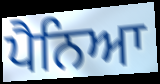
ਪੈਨਿਆ